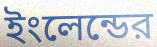
ইংলেন্ডের